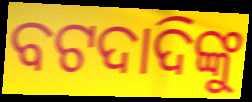
ବଟଦାଦିଙ୍କୁ